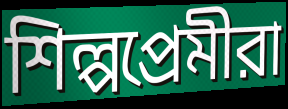
শিল্পপ্রেমীরা